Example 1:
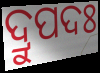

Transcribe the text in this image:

ଦ୍ରୁପଦଃ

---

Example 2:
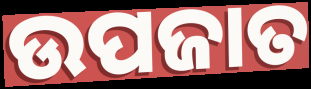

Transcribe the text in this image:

ଉପଜାତ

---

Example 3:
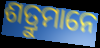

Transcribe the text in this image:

ଶତ୍ରୁମାନେ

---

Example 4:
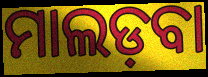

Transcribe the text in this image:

ମାଲଡ଼ବା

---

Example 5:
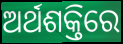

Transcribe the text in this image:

ଅର୍ଥଶକ୍ତିରେ